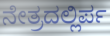
ನೇತ್ರದಲ್ಲಿರ್ಪ